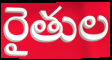
రైతుల